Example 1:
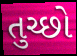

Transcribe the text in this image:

તુચ્છો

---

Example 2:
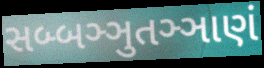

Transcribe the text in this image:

સબ્બઞ્ઞુતઞ્ઞાણં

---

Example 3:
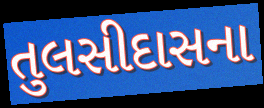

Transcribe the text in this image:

તુલસીદાસના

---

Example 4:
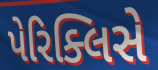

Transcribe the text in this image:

પેરિક્લિસે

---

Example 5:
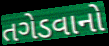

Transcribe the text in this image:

તગેડવાનો